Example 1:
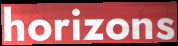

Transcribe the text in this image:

horizons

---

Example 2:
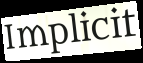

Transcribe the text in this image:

Implicit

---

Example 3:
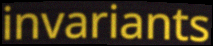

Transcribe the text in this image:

invariants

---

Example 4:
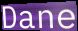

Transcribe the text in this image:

Dane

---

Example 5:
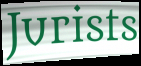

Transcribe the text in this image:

Jurists